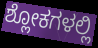
ಶ್ಲೋಕಗಳಲ್ಲಿ